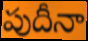
పుదీనా